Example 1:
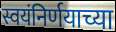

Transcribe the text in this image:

स्वयंनिर्णयाच्या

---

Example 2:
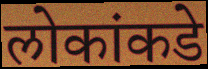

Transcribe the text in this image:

लोकांकडे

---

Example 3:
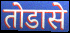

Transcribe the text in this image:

तोडासे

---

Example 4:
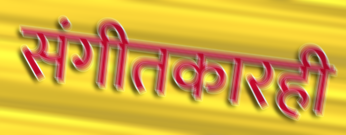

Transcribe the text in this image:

संगीतकारही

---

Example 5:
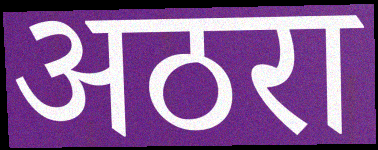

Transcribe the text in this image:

अठरा